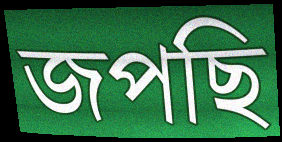
জপছি